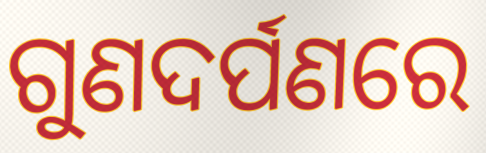
ଗୁଣଦର୍ପଣରେ